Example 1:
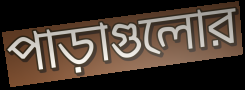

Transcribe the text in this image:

পাড়াগুলোর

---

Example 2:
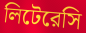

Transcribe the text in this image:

লিটেরেসি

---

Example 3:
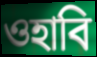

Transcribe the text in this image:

ওহাবি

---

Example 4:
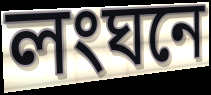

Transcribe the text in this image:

লংঘনে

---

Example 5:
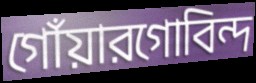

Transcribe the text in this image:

গোঁয়ারগোবিন্দ